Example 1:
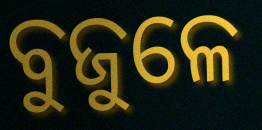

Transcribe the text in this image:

ବୁଜୁଳେ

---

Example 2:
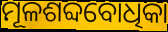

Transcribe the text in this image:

ମୂଳଶବ୍ଦବୋଧିକା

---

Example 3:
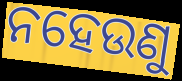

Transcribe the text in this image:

ନହେଉଣୁ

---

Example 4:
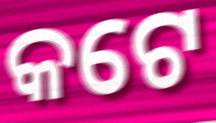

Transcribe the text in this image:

କଟେ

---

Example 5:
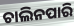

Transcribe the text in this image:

ଚାଲିନପାରି